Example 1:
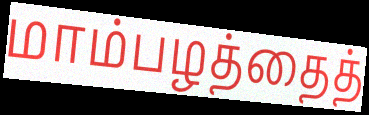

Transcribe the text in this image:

மாம்பழத்தைத்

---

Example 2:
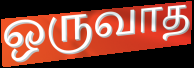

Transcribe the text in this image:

ஒருவாத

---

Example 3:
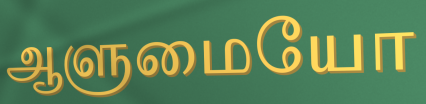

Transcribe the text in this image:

ஆளுமையோ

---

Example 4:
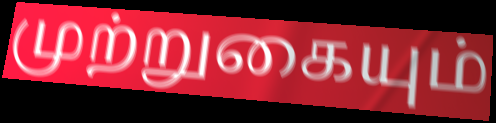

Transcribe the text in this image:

முற்றுகையும்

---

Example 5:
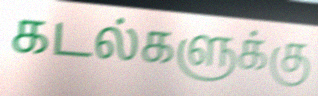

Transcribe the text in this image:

கடல்களுக்கு